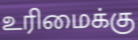
உரிமைக்கு